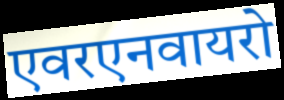
एवरएनवायरो